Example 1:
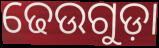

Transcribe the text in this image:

ଢେଉଗୁଡ଼ା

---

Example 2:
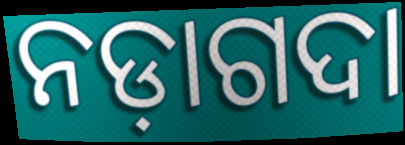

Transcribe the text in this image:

ନଡ଼ାଗଦା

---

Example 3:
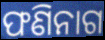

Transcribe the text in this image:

ଫଣିନାଗ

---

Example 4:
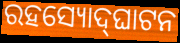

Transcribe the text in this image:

ରହସ୍ୟୋଦ୍‍ଘାଟନ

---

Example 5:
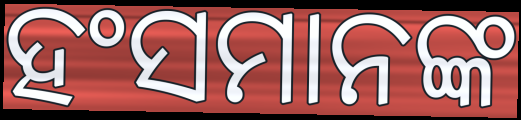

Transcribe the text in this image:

ହଂସମାନଙ୍କ